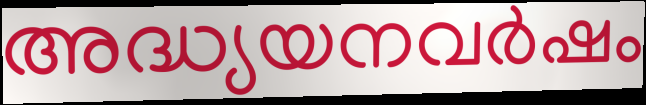
അദ്ധ്യയനവർഷം